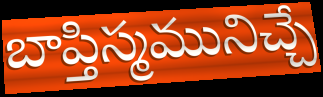
బాప్తిస్మమునిచ్చే